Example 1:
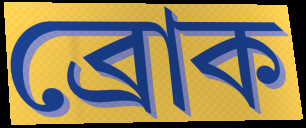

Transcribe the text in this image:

ব্রোক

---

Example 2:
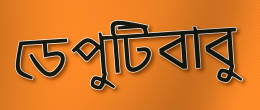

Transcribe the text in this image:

ডেপুটিবাবু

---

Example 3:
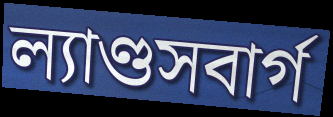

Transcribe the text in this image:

ল্যাণ্ডসবার্গ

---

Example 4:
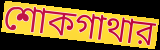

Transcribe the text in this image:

শোকগাথার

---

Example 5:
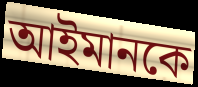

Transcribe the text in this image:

আইমানকে